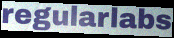
regularlabs